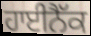
ਹਾਈਨੈੱਕ